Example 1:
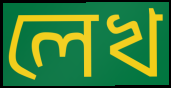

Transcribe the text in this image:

লেখ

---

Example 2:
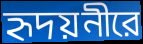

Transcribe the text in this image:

হৃদয়নীরে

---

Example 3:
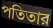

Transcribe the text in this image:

পতিতার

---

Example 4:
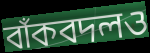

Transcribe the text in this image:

বাঁকবদলও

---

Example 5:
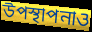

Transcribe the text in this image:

উপস্থাপনাও